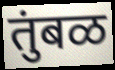
तुंबळ